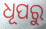
ଧୂପରୁ